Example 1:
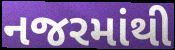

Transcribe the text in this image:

નજરમાંથી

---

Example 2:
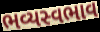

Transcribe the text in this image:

ભવ્યસ્વભાવ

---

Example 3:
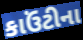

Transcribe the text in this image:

કાઉંટીના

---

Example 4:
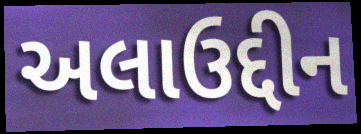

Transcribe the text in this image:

અલાઉદ્દીન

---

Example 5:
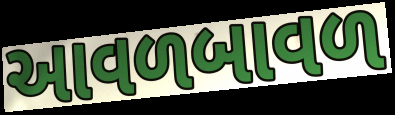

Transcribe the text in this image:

આવળબાવળ